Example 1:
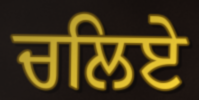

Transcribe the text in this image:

ਚਲਿਏ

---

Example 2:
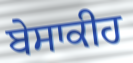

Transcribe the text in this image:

ਬੇਸਾਕੀਹ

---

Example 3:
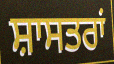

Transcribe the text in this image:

ਸ਼ਾਸਤਰਾਂ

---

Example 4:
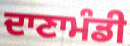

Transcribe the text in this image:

ਦਾਣਾਮੰਡੀ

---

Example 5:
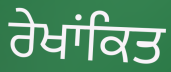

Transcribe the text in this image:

ਰੇਖਾਂਕਿਤ